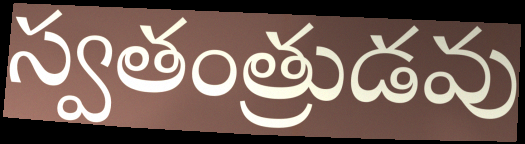
స్వతంత్రుడవు